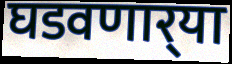
घडवणार्‍या